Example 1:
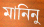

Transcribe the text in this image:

মানিনু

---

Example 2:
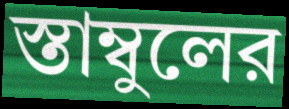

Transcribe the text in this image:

স্তাম্বুলের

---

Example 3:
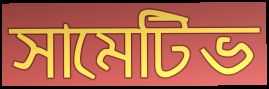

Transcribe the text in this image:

সামেটিভ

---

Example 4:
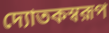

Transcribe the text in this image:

দ্যোতকস্বরূপ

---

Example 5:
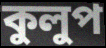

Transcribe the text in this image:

কুলুপ